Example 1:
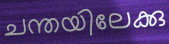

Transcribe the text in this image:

ചന്തയിലേക്കു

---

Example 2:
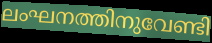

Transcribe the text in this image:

ലംഘനത്തിനുവേണ്ടി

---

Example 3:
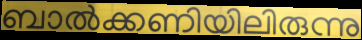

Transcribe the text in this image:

ബാൽക്കണിയിലിരുന്നു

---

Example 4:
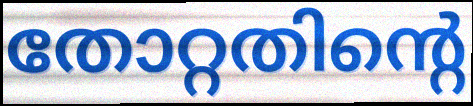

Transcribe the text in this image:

തോറ്റതിന്റെ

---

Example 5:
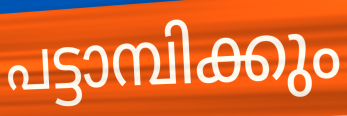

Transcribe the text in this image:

പട്ടാമ്പിക്കും